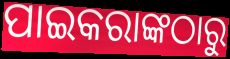
ପାଇକରାଙ୍କଠାରୁ